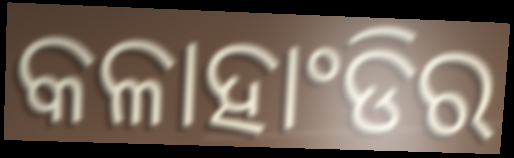
କଳାହାଂଡିର